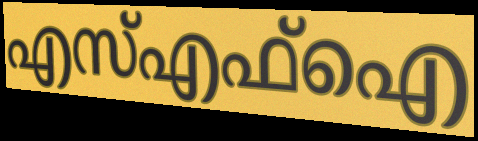
എസ്എഫ്ഐ